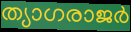
ത്യാഗരാജർ